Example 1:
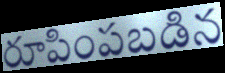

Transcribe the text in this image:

రూపింపబడిన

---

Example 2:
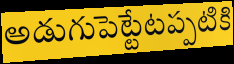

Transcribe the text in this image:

అడుగుపెట్టేటప్పటికి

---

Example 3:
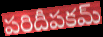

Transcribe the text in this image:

పరిదీపకమ్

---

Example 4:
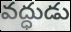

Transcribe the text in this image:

వద్ధుడు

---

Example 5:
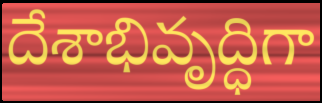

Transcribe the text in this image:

దేశాభివృద్ధిగా